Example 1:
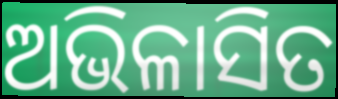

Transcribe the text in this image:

ଅଭିଳାସିତ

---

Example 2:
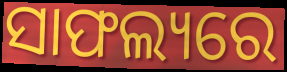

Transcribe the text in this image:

ସାଫଲ୍ୟରେ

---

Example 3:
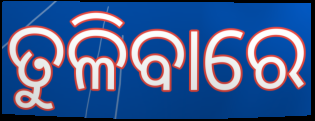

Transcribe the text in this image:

ତୁଳିବାରେ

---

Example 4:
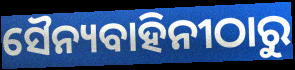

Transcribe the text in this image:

ସୈନ୍ୟବାହିନୀଠାରୁ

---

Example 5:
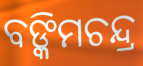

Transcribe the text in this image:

ବଙ୍କିମଚନ୍ଦ୍ର